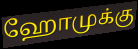
ஹோமுக்கு